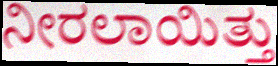
ನೀರಲಾಯಿತ್ತು